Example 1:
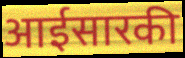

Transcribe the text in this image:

आईसारकी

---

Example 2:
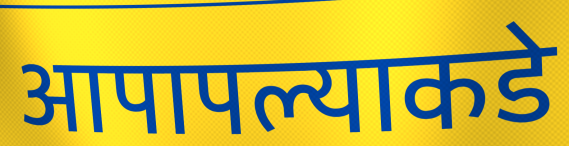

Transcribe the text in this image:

आपापल्याकडे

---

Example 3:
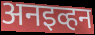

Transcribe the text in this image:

अनइव्हन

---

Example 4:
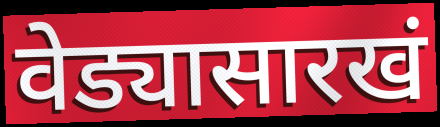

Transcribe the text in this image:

वेड्यासारखं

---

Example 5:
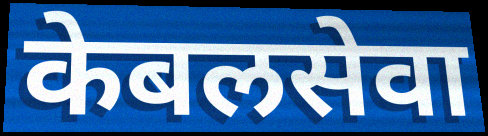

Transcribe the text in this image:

केबलसेवा